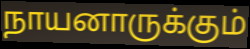
நாயனாருக்கும்